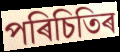
পৰিচিতিৰ